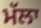
ਮੱਲਾ